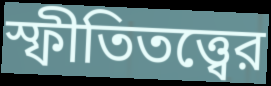
স্ফীতিতত্ত্বের